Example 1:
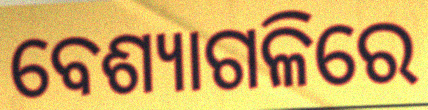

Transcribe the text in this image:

ବେଶ୍ୟାଗଳିରେ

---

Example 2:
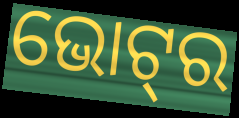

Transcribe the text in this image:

ଭୋଟ୍‍ର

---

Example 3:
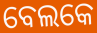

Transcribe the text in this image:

ବେଲକେ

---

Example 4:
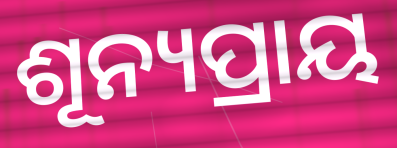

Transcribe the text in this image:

ଶୂନ୍ୟପ୍ରାୟ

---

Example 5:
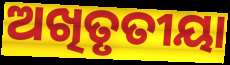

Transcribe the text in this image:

ଅଖିତୃତୀୟା